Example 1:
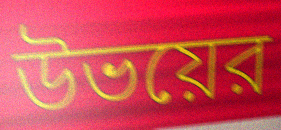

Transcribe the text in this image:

উভয়ের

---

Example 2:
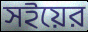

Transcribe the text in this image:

সইয়ের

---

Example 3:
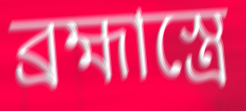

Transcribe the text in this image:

ব্রহ্মাস্ত্রে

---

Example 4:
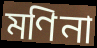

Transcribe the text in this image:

মণিনা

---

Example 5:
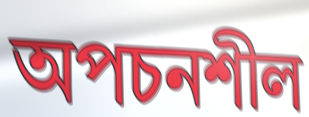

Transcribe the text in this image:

অপচনশীল